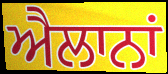
ਐਲਾਨਾਂ